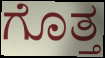
ಗೊತ್ತ